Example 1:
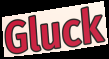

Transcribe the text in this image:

Gluck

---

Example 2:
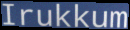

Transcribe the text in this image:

Irukkum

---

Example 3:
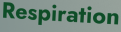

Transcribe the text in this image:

Respiration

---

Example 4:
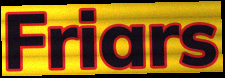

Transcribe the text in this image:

Friars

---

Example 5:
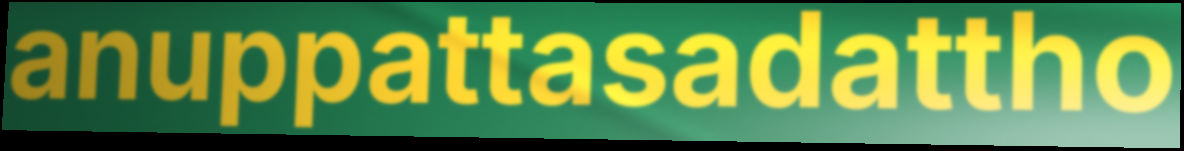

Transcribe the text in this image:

anuppattasadattho